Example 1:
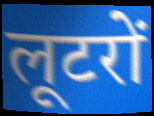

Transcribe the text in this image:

लूटरों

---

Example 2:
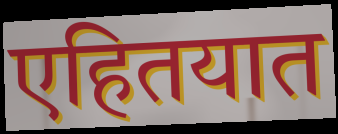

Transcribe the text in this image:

एहितयात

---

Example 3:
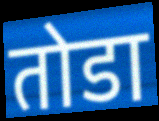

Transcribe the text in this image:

तोडा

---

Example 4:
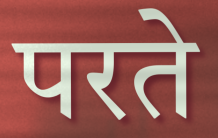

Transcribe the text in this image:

परते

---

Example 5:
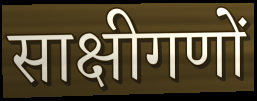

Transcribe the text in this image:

साक्षीगणों